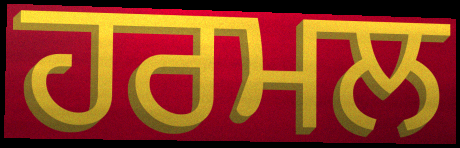
ਹਰਮਲ